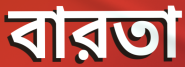
বারতা